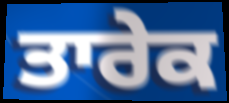
ਤਾਰੇਕ